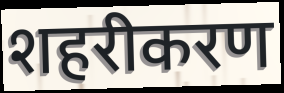
शहरीकरण